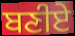
ਬਣੀਏ